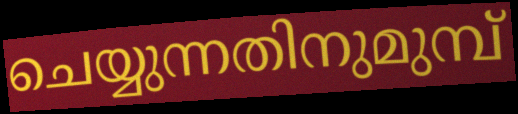
ചെയ്യുന്നതിനുമുമ്പ്